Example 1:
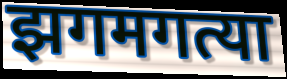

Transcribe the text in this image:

झगमगत्या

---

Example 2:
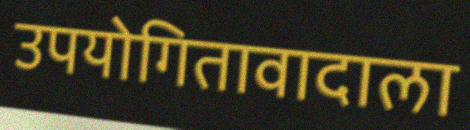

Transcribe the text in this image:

उपयोगितावादाला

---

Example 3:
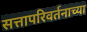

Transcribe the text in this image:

सत्तापरिवर्तनाच्या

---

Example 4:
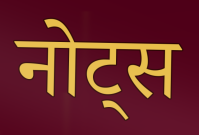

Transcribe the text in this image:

नोट्स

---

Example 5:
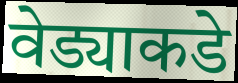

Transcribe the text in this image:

वेड्याकडे